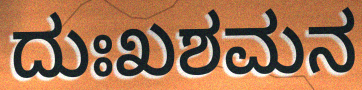
ದುಃಖಶಮನ